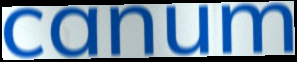
canum